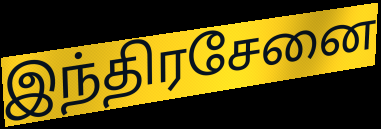
இந்திரசேனை